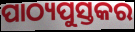
ପାଠ୍ୟପୁସ୍ତକର